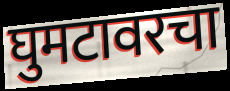
घुमटावरचा